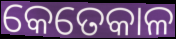
କେତେକାଳ